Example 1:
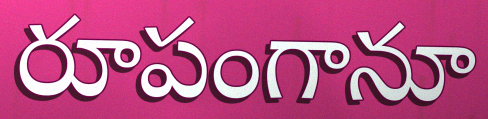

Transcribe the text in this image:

రూపంగానూ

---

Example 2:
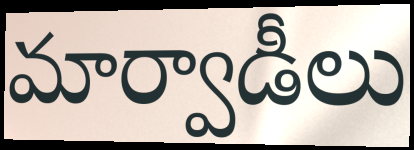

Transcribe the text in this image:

మార్వాడీలు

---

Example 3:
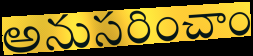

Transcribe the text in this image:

అనుసరించాం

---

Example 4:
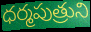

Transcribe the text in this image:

ధర్మపుత్రుని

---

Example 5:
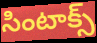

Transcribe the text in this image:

సింటాక్స్